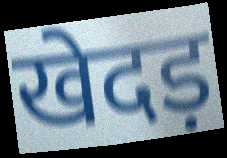
खेदड़